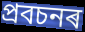
প্ৰবচনৰ